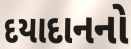
દયાદાનનો